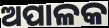
ଅପାଳକ